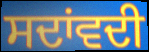
ਸਦਾਂਵਦੀ